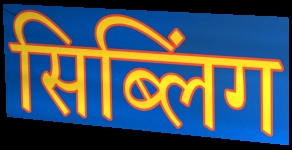
सिब्लिंग